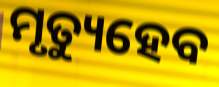
ମୃତ୍ୟୁହେବ